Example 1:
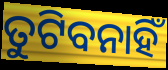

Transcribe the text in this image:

ତୁଟିବନାହିଁ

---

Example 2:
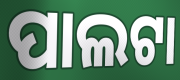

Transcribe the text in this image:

ପାଲଟା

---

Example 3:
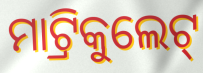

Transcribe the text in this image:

ମାଟ୍ରିକୁଲେଟ୍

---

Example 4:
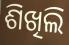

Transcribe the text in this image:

ଶିଖିଲି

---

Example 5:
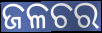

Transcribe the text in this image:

ଜଳଚର